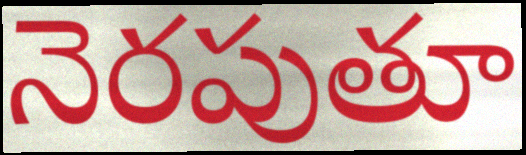
నెరపుతూ